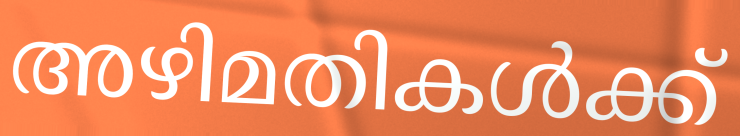
അഴിമതികൾക്ക്